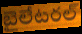
బైలేటరల్